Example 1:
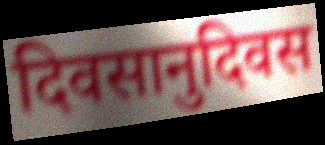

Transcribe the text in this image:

दिवसानुदिवस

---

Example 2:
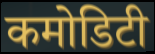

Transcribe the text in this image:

कमोडिटी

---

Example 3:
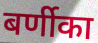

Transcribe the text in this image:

बर्णीका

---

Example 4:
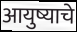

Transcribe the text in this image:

आयुष्याचे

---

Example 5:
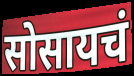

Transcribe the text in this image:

सोसायचं